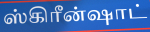
ஸ்கிரீன்ஷாட்